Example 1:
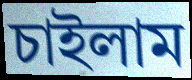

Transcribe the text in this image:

চাইলাম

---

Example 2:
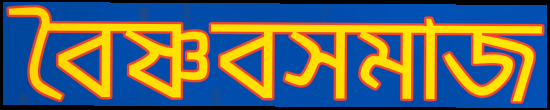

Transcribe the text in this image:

বৈষ্ণবসমাজ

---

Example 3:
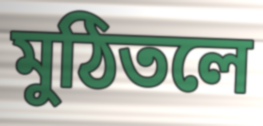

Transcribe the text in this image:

মুঠিতলে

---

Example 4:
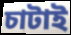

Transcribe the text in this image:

চাটাই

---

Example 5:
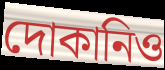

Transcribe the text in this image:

দোকানিও